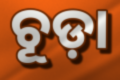
ଚୂଡ଼ା